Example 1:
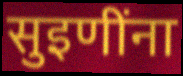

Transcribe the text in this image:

सुइणींना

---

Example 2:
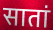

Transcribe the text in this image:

सातां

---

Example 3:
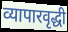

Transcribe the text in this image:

व्यापारवृद्धी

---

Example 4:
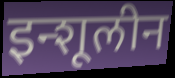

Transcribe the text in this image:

इन्शूलीन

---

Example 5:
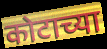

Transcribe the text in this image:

कोटाच्या